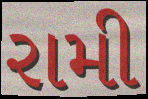
રામી